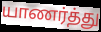
யாணர்த்து